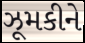
ઝૂમકીને